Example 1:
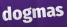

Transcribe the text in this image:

dogmas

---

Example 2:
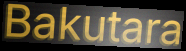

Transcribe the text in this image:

Bakutara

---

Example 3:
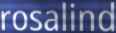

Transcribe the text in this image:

rosalind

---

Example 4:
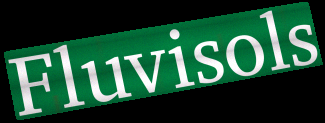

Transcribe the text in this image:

Fluvisols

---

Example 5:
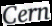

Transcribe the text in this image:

Cern